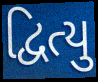
દ્વિત્યુ